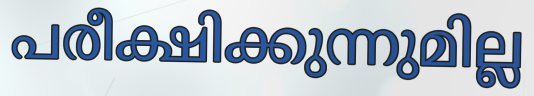
പരീക്ഷിക്കുന്നുമില്ല